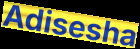
Adisesha